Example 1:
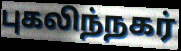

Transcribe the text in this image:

புகலிந்நகர்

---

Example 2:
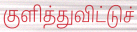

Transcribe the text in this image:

குளித்துவிட்டுச்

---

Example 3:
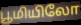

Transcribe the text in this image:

பூமியிலோ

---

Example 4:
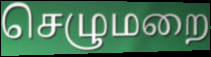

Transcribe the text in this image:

செழுமறை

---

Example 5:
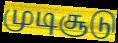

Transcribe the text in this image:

முடிசூடு